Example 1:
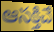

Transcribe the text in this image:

ఆసక్తిచే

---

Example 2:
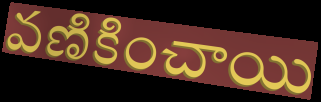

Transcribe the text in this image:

వణికించాయి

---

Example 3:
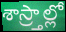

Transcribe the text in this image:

శాస్ర్తాల్లో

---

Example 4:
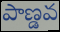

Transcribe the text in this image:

పాణ్డవ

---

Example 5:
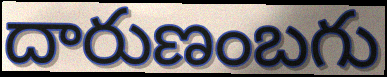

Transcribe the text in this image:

దారుణంబగు